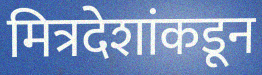
मित्रदेशांकडून